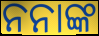
ନନାଙ୍କ